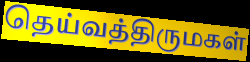
தெய்வத்திருமகள்